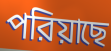
পরিয়াছে